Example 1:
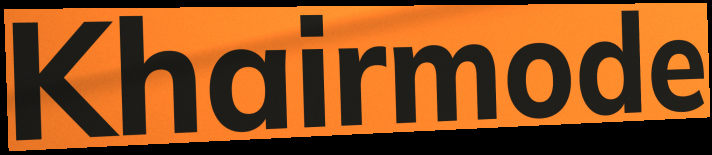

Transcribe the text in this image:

Khairmode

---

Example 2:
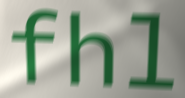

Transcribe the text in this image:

fhl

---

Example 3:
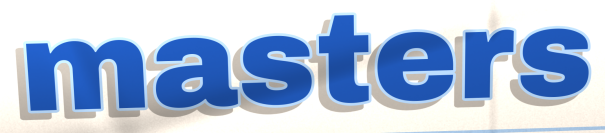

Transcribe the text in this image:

masters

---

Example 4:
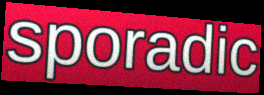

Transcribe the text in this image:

sporadic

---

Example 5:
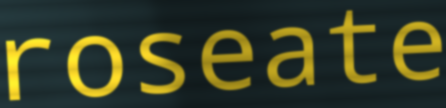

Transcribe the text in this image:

roseate